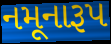
નમૂનારૂપ